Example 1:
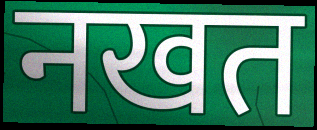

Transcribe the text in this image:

नखत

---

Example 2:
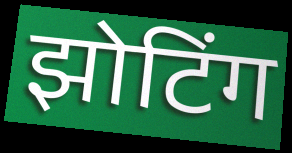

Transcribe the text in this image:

झोटिंग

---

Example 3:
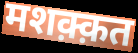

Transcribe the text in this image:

मशक़्क़त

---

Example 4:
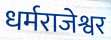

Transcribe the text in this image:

धर्मराजेश्वर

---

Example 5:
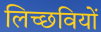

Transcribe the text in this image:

लिच्छवियों